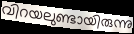
വിറയലുണ്ടായിരുന്നു